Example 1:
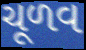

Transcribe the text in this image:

ચૂળવ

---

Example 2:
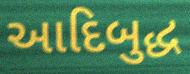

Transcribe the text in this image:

આદિબુદ્ધ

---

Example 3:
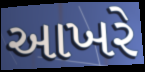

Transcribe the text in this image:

આખરે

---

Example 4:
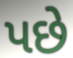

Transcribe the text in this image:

પછે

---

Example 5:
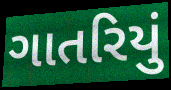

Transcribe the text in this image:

ગાતરિયું